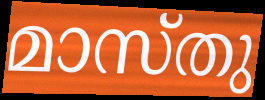
മാസ്തു